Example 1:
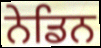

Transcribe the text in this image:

ਨੇਡਿਨ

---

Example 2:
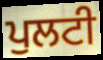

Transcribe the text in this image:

ਪੁਲਟੀ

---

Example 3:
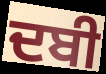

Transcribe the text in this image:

ਦਬੀ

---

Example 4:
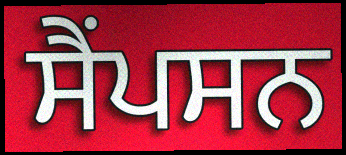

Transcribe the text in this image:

ਸੈਂਪਸਨ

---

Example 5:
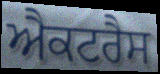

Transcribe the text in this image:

ਐਕਟਰੈਸ